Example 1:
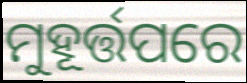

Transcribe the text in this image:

ମୁହୂର୍ତ୍ତପରେ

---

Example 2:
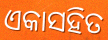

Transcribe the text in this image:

ଏକାସହିତ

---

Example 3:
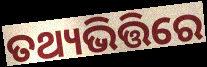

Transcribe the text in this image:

ତଥ୍ୟଭିତ୍ତିରେ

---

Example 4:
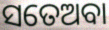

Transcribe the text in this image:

ସତେଅବା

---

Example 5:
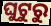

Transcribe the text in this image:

ଘୁଟୁରୁ